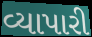
વ્યાપારી